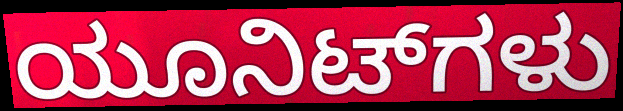
ಯೂನಿಟ್‌ಗಳು